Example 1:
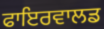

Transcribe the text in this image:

ਫਾਇਰਵਾਲਡ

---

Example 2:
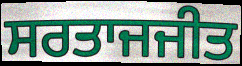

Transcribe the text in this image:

ਸਰਤਾਜਜੀਤ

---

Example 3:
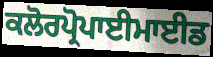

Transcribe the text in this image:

ਕਲੋਰਪ੍ਰੋਪਾਈਮਾਈਡ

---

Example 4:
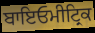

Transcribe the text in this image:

ਬਾਇਓਮੀਟ੍ਰਿਕ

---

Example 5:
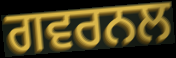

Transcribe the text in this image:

ਗਵਰਨਲ